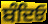
ਬੰਦਿਓ